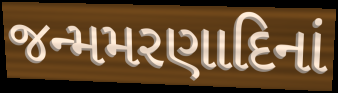
જન્મમરણાદિનાં